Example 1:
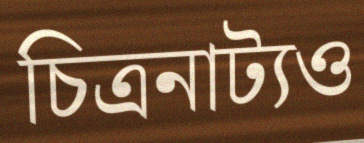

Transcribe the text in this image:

চিত্রনাট্যও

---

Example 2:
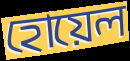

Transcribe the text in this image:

হোয়েল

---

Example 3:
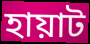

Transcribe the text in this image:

হায়াট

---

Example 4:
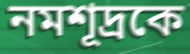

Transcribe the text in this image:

নমশূদ্রকে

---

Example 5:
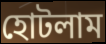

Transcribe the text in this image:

হোটলাম